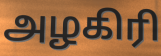
அழகிரி